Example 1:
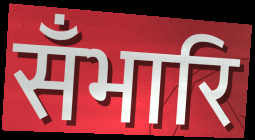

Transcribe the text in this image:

सँभारि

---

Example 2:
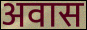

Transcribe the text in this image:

अवास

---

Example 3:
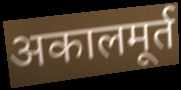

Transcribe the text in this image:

अकालमूर्त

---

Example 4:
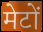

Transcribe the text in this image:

मेटों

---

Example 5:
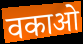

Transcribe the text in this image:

वकाओ